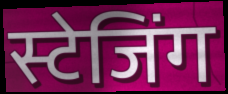
स्टेजिंग